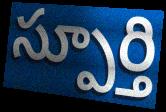
స్పూర్తి